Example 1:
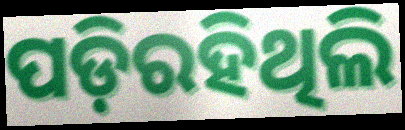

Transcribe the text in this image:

ପଡ଼ିରହିଥିଲି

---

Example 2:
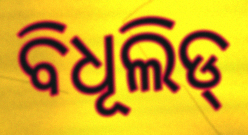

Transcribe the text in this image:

ବିଧୂଲିଡ୍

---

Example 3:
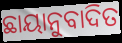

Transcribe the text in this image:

ଛାୟାନୁବାଦିତ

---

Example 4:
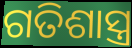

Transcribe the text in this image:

ଗତିଶାସ୍ତ୍ର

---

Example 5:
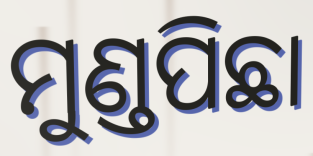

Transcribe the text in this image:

ମୁଣ୍ଡପିଛା